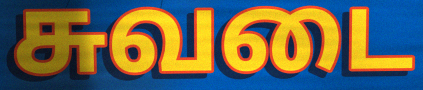
சுவடை